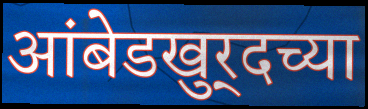
आंबेडखुर्दच्या